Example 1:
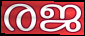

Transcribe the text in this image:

രജ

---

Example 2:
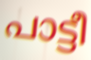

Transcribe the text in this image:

പാട്ടീ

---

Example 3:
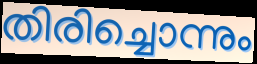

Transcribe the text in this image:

തിരിച്ചൊന്നും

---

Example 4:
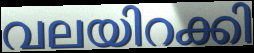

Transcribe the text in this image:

വലയിറക്കി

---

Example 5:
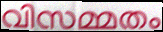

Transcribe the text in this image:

വിസമ്മതം